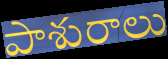
పాశురాలు